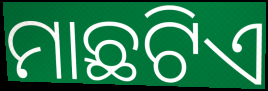
ମାଛଟିଏ